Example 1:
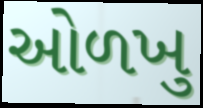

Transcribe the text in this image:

ઓળખુ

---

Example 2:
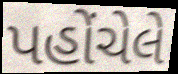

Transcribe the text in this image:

પહોંચેલે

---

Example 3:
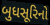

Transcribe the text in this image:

બુધસૂરિનો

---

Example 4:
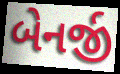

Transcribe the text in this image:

બેનર્જી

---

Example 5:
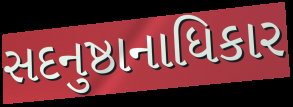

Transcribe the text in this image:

સદનુષ્ઠાનાધિકાર